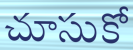
చూసుకో